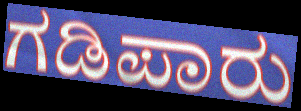
ಗಡಿಪಾರು